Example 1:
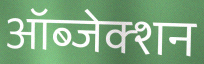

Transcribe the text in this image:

ऑब्‍जेक्‍शन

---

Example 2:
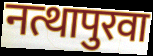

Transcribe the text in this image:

नत्थापुरवा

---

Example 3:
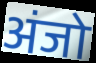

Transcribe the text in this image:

अंजो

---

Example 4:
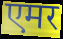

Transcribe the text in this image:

एमर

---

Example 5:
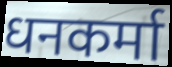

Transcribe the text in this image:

धनकर्मा